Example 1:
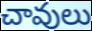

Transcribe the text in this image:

చావులు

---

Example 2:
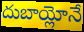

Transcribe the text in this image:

దుబాయ్లోనే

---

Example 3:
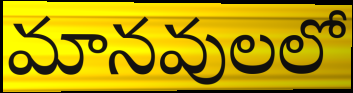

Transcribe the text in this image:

మానవులలో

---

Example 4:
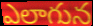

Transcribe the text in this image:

ఎలాగున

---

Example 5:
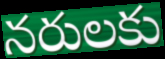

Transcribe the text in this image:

నరులకు